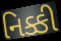
નિક્કી